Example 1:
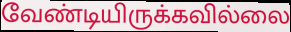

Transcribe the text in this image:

வேண்டியிருக்கவில்லை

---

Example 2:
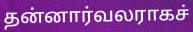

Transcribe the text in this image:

தன்னார்வலராகச்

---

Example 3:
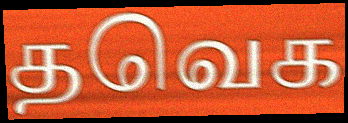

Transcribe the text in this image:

தவெக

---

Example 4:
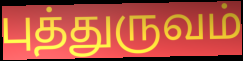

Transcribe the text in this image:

புத்துருவம்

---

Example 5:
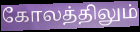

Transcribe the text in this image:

கோலத்திலும்